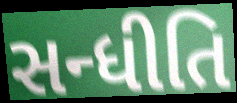
સન્ધીતિ